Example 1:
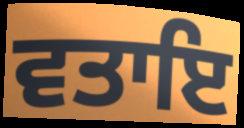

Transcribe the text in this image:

ਵਤਾਇ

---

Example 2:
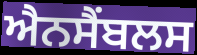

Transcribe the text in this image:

ਐਨਸੈਂਬਲਸ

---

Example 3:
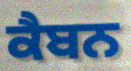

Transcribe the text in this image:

ਕੈਬਨ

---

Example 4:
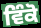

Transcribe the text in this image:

ਵਿੰਕੋ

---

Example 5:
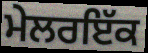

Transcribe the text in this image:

ਮੇਲਰਇੱਕ